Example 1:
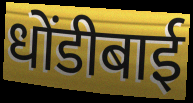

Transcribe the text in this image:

धोंडीबाई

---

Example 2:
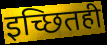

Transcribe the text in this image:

इच्छितही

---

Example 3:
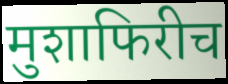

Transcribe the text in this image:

मुशाफिरीच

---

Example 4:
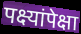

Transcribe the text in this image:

पक्ष्यांपेक्षा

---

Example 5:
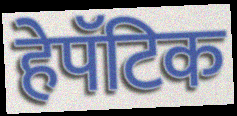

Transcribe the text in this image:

हेपॅटिक